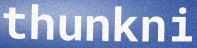
thunkni